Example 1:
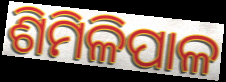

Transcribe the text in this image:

ଶିମିଳିପାଳ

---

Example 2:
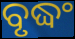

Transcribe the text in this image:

ବୃଦ୍ଧଂ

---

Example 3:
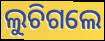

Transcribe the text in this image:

ଲୁଚିଗଲେ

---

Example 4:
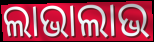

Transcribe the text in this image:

ଲାଭାଲାଭ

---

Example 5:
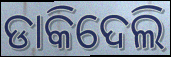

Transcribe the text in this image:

ଡାକିଦେଲି